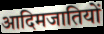
आदिमजातियों